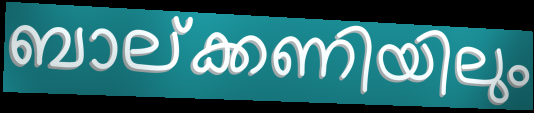
ബാല്ക്കണിയിലും